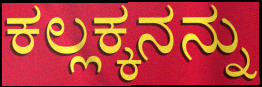
ಕಲ್ಲಕ್ಕನನ್ನು